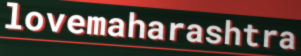
lovemaharashtra